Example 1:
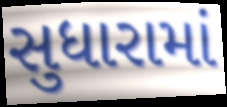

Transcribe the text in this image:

સુધારામાં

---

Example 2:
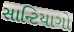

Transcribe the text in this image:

સાન્ટિયાગો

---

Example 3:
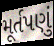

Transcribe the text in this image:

મૂર્તપણું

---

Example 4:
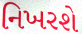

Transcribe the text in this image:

નિખરશે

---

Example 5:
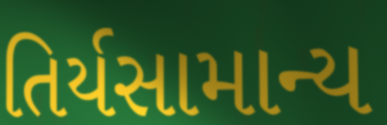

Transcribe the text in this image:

તિર્યસામાન્ય